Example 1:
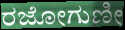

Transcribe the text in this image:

ರಜೋಗುಣೀ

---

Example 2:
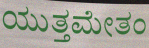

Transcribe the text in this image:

ಯುತ್ತಮೇತಂ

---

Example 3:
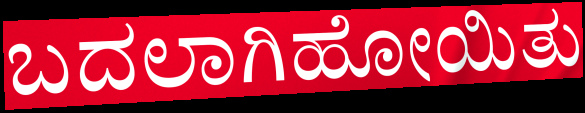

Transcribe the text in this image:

ಬದಲಾಗಿಹೋಯಿತು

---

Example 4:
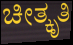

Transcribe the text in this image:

ಚೀತ್ಕೃತಿ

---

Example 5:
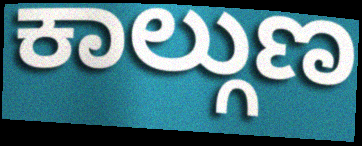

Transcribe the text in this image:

ಕಾಲ್ಗುಣ